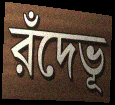
রঁদেভূ